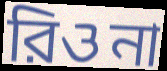
রিওনা